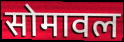
सोमावल